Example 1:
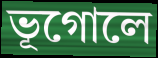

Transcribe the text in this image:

ভূগোলে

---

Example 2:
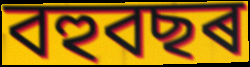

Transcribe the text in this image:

বহুবছৰ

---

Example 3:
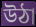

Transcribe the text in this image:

উঠা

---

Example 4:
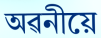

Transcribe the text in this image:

অৱনীয়ে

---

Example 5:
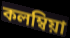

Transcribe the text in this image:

কলম্বিয়া